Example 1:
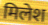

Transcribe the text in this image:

मिलेश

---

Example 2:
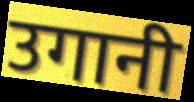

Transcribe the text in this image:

उगानी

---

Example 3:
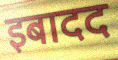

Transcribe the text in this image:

इबादद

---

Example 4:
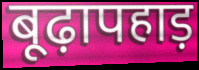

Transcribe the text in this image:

बूढ़ापहाड़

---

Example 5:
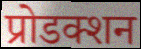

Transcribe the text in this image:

प्रोडक्शन